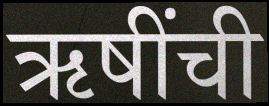
ऋषींची